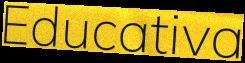
Educativa